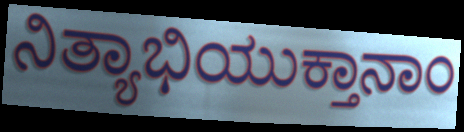
ನಿತ್ಯಾಭಿಯುಕ್ತಾನಾಂ